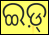
ଇଡ଼୍